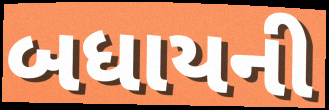
બધાયની